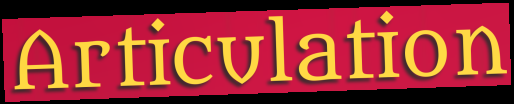
Articulation